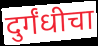
दुर्गंधीचा